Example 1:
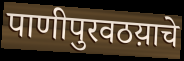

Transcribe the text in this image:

पाणीपुरवठय़ाचे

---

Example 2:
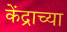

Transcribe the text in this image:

केंद्राच्या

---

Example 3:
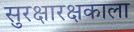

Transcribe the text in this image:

सुरक्षारक्षकाला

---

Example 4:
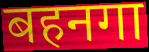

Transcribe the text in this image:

बहनगा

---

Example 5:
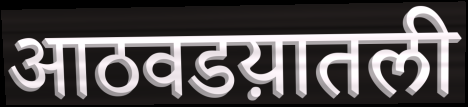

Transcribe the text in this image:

आठवडय़ातली